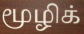
மூழிக்